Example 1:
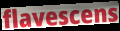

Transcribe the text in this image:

flavescens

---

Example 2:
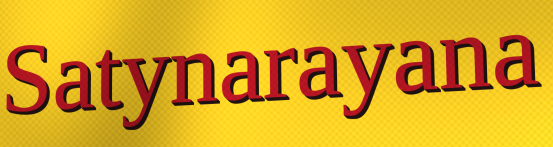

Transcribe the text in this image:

Satynarayana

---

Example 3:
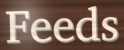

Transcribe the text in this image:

Feeds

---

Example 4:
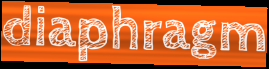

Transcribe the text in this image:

diaphragm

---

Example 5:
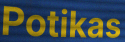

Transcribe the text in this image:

Potikas